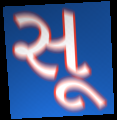
સૂ